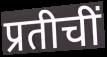
प्रतीचीं